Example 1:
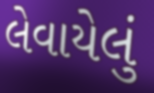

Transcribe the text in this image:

લેવાયેલું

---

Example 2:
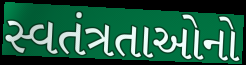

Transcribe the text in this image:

સ્વતંત્રતાઓનો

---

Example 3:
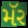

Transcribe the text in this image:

મૅર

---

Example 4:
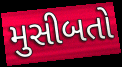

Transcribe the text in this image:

મુસીબતો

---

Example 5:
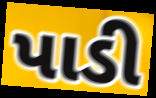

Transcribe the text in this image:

પાડી